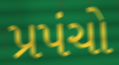
પ્રપંચો